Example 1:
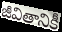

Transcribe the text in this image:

జీవితానికీ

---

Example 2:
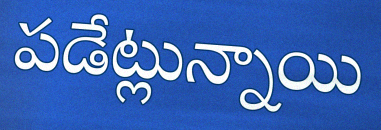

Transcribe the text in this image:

పడేట్లున్నాయి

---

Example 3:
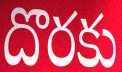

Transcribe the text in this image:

దొరకు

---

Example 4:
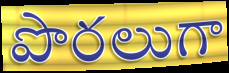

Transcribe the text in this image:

పొరలుగా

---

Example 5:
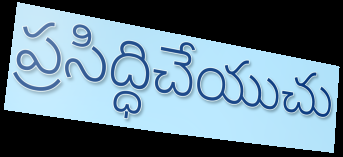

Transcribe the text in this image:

ప్రసిద్ధిచేయుచు